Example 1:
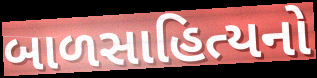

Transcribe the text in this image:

બાળસાહિત્યનો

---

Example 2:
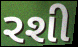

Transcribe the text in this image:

રશી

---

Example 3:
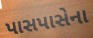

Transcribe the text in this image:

પાસપાસેના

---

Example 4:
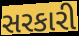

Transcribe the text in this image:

સરકારી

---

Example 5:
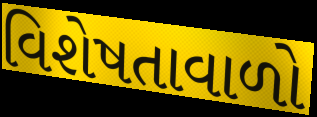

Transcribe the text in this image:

વિશેષતાવાળો